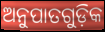
ଅନୁପାତଗୁଡ଼ିକ